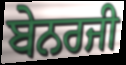
ਬੇਨਰਜੀ